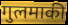
गुलमाकी